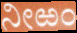
ನೀಱಂ